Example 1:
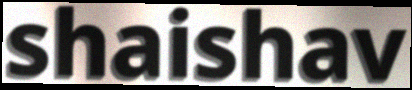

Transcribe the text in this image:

shaishav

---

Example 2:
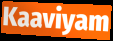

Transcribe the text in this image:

Kaaviyam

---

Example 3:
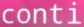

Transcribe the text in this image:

conti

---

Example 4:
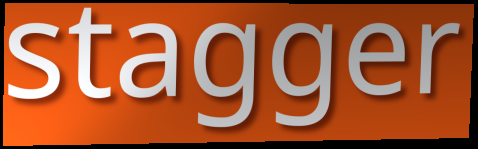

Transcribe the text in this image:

stagger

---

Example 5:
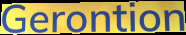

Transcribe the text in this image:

Gerontion